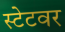
स्टेटवर